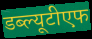
डब्ल्यूटीएफ